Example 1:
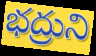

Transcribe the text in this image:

భద్రుని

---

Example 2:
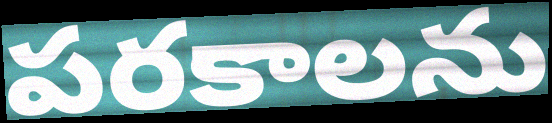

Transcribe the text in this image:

పరకాలను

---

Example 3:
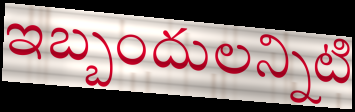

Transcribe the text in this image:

ఇబ్బందులన్నిటి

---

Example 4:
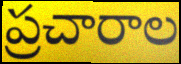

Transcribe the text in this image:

ప్రచారాల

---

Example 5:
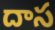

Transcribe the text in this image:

దాస